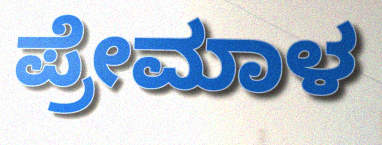
ಪ್ರೇಮಾಳ